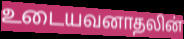
உடையவனாதலின்